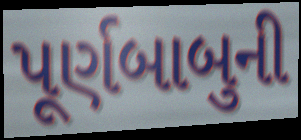
પૂર્ણબાબુની